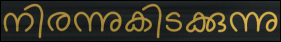
നിരന്നുകിടക്കുന്നു